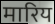
मारिय